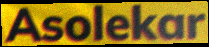
Asolekar